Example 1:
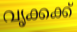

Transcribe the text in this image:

വൃക്കക്ക്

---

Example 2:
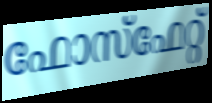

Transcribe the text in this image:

ഫോസ്ഫേറ്റ്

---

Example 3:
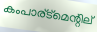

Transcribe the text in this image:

കംപാര്ട്മെന്റില്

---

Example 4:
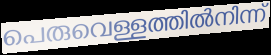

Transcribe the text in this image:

പെരുവെള്ളത്തിൽനിന്ന്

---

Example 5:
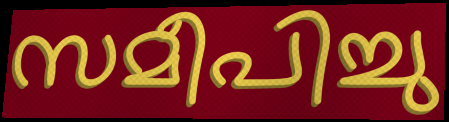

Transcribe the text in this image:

സമീപിച്ചു